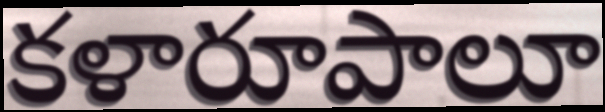
కళారూపాలూ